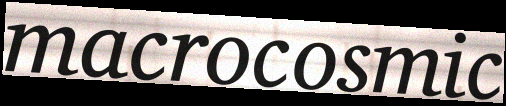
macrocosmic